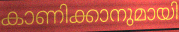
കാണിക്കാനുമായി